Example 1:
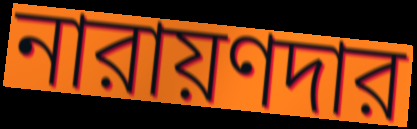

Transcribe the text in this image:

নারায়ণদার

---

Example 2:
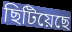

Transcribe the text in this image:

ছিটিয়েছে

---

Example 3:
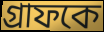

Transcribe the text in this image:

গ্রাফকে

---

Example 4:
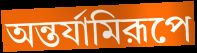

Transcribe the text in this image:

অন্তর্যামিরূপে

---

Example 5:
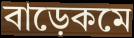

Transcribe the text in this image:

বাড়েকমে